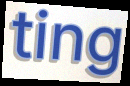
ting